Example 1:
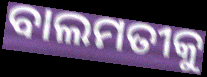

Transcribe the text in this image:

ବାଲମତୀକୁ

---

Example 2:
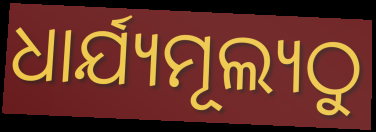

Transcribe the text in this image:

ଧାର୍ଯ୍ୟମୂଲ୍ୟଠୁ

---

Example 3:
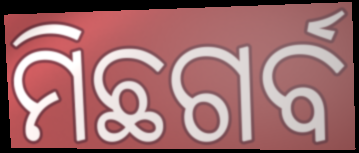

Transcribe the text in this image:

ମିଛଗର୍ବ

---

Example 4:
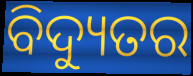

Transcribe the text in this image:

ବିଦ୍ୟୁତର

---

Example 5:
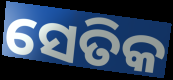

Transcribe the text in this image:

ସେତିକ